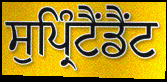
ਸੁਪ੍ਰਿੰਟੈਂਡੈਂਟ